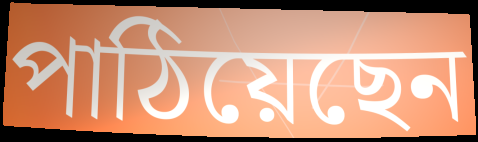
পাঠিয়েছেন